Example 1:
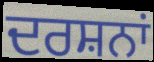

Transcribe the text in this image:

ਦਰਸ਼ਨਾਂ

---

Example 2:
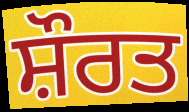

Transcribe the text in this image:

ਸ਼ੌਰਤ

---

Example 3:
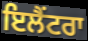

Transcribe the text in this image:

ਇਲੈਂਟਰਾ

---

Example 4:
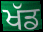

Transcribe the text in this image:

ਖੱਡ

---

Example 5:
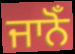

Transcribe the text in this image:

ਜਾਨੋਁ